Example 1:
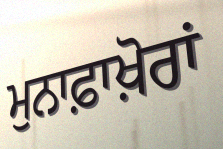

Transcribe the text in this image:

ਮੁਨਾਫ਼ਾਖ਼ੋਰਾਂ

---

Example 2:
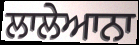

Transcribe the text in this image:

ਲਾਲੇਆਨਾ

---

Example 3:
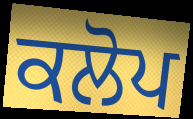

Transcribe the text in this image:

ਕਲੋਪ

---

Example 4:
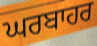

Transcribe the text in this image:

ਘਰਬਾਹਰ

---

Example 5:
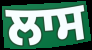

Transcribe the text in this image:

ਲਾਸ